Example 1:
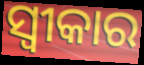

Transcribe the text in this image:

ସ୍ବୀକାର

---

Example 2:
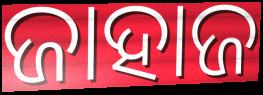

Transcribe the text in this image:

ଜାହାଜ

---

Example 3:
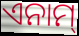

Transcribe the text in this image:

ଏନାମ୍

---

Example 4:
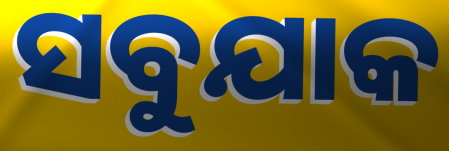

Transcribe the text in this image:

ସବୁଯାକ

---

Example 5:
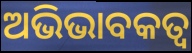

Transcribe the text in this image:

ଅଭିଭାବକତ୍ବ